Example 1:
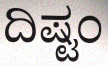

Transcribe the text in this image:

ದಿಷ್ಟಂ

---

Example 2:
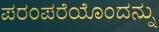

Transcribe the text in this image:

ಪರಂಪರೆಯೊಂದನ್ನು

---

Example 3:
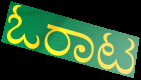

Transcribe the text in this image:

ಓರಾಟ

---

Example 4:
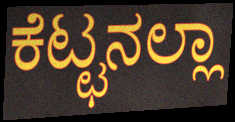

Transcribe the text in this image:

ಕೆಟ್ಟನಲ್ಲಾ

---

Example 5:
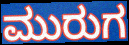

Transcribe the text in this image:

ಮುರುಗ